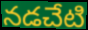
నడచేటి